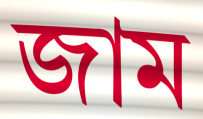
জাম